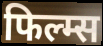
फिल्म्स